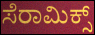
ಸೆರಾಮಿಕ್ಸ್